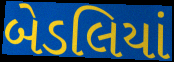
બેડલિયાં